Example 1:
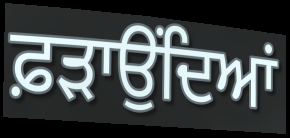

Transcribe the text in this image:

ਫ਼ੜਾਉਂਦਿਆਂ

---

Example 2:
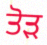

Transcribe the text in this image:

ਤੋਡ਼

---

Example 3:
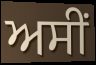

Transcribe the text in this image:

ਅਸੀੰ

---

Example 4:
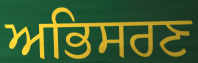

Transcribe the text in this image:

ਅਭਿਸਰਣ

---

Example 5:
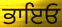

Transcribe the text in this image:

ਭਾਇਓ